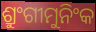
ଶ୍ରୁଂଗୀମୁନିଂକ